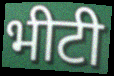
भीटी